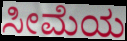
ಸೀಮೆಯ